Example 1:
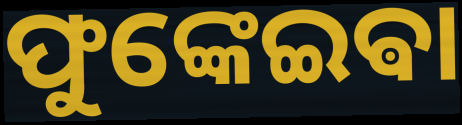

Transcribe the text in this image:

ଫୁଙ୍କେଇଵା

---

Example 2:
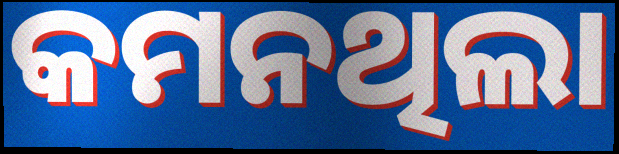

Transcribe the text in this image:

କମନଥିଲା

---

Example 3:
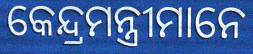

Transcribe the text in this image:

କେନ୍ଦ୍ରମନ୍ତ୍ରୀମାନେ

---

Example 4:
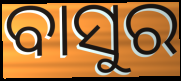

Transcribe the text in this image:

ବାସୁର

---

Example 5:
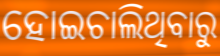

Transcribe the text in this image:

ହୋଇଚାଲିଥିବାରୁ